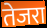
तेजरा